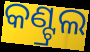
କଣ୍ଟ୍ରଲ